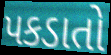
પકડાતો